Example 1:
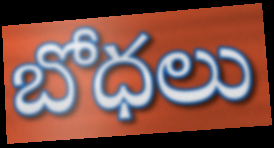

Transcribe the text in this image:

బోధలు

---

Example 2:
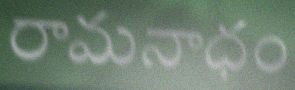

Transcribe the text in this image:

రామనాధం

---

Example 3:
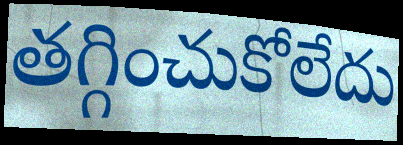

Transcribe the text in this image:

తగ్గించుకోలేదు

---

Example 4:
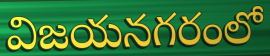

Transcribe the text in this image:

విజయనగరంలో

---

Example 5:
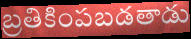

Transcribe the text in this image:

బ్రతికింపబడతాడు